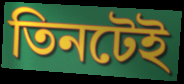
তিনটেই